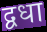
द्वधा